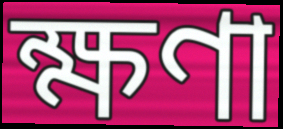
ক্ষণা